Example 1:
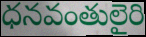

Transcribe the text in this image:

ధనవంతులైరి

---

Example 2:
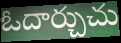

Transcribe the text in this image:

ఓదార్చుచు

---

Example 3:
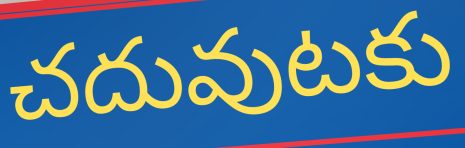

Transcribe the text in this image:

చదువుటకు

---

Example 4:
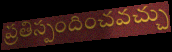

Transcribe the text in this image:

ప్రతిస్పందించవచ్చు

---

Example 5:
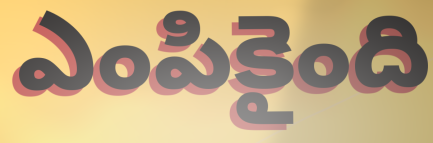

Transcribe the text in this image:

ఎంపికైంది